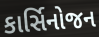
કાર્સિનોજન